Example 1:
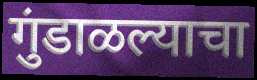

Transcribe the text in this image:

गुंडाळल्याचा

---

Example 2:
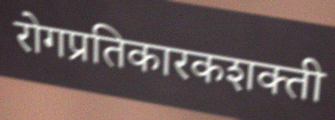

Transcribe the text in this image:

रोगप्रतिकारकशक्ती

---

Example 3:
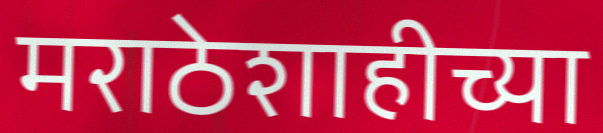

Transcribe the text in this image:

मराठेशाहीच्या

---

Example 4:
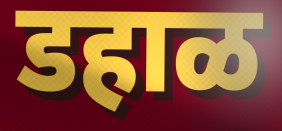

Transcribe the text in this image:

डहाळ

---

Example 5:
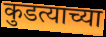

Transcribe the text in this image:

कुडत्याच्या